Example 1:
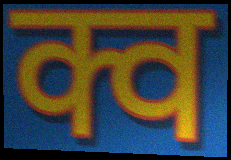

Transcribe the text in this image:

क्व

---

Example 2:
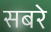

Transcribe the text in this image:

सबरे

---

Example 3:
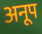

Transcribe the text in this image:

अनूप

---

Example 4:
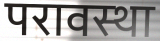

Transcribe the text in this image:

परावस्था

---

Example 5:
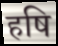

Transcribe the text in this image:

हषि